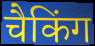
चैकिंग